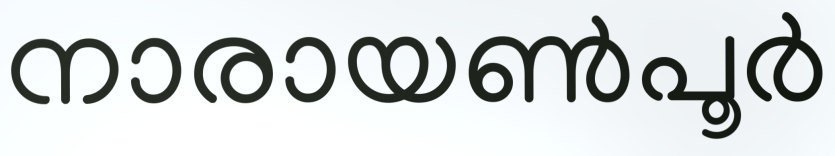
നാരായൺപൂർ